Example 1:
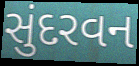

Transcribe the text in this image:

સુંદરવન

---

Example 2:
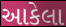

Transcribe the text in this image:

આકેલા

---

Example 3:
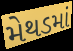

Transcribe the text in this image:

મેથડમાં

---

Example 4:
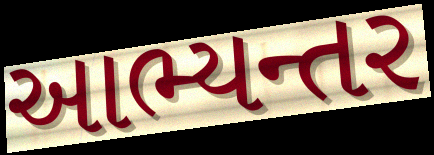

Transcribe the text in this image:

આભ્યન્તર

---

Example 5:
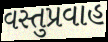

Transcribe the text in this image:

વસ્તુપ્રવાહ